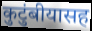
कुटुंबीयासह